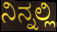
ನಿನ್ನಲ್ಲಿ